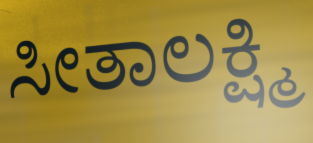
ಸೀತಾಲಕ್ಷ್ಮಿ